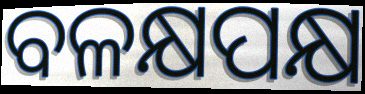
ବଳକ୍ଷପକ୍ଷ